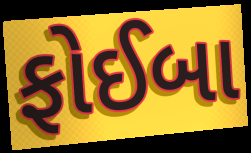
ફોઈબા